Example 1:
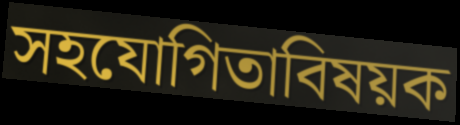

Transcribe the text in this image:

সহযোগিতাবিষয়ক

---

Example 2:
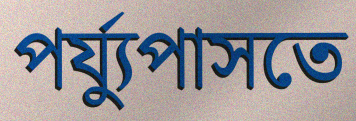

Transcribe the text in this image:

পর্য্যুপাসতে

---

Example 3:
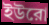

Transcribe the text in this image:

ইউরো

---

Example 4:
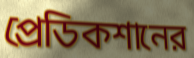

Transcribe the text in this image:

প্রেডিকশানের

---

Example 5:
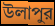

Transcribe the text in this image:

উলাপুর